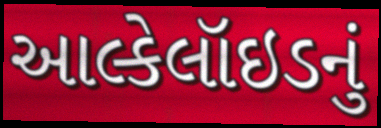
આલ્કેલૉઇડનું